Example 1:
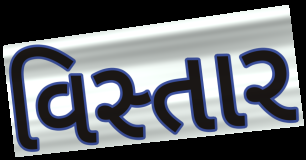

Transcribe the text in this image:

વિસ્તાર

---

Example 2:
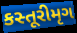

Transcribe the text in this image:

કસ્તૂરીમૃગ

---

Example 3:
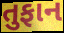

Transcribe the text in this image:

તુફાન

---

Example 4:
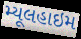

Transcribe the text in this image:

મ્યૂલહાઇમ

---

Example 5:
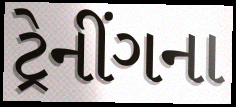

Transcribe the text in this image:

ટ્રેનીંગના